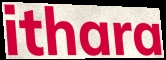
ithara